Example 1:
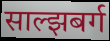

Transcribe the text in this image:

साल्झबर्ग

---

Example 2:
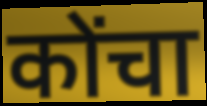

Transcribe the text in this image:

कोंचा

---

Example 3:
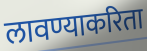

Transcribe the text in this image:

लावण्याकरिता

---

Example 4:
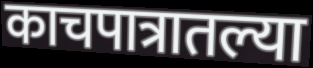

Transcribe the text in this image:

काचपात्रातल्या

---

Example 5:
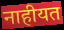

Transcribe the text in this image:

नाहीयत